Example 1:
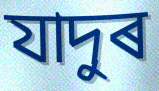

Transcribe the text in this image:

যাদুৰ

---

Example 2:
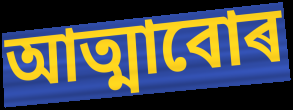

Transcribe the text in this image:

আত্মাবোৰ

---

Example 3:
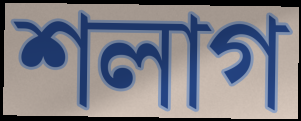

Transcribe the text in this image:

শলাগ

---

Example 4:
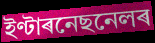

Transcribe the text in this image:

ইণ্টাৰনেছনেলৰ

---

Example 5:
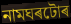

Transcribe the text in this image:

নামঘৰটোৰ